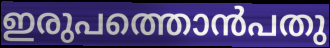
ഇരുപത്തൊൻപതു